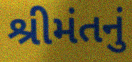
શ્રીમંતનું